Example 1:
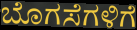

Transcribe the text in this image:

ಬೊಗಸೆಗಳಿಗೆ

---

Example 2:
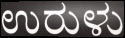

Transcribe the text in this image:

ಉರುಳು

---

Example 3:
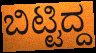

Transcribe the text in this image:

ಬಿಟ್ಟಿದ್ದ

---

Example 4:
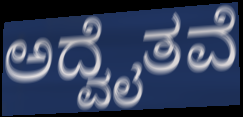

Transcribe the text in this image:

ಅದ್ವೈತವೆ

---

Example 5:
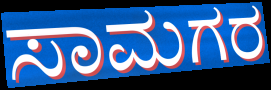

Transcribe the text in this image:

ಸಾಮಗರ